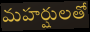
మహర్షులతో